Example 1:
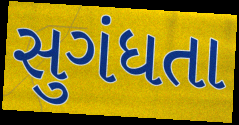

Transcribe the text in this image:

સુગંધતા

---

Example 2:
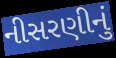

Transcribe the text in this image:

નીસરણીનું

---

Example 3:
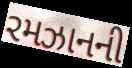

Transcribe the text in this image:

રમઝાનની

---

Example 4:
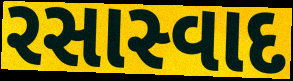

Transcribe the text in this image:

રસાસ્વાદ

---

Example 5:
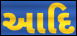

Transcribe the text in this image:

આદિ